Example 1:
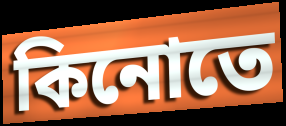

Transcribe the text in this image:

কিনোতে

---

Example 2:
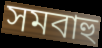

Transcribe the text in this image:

সমবাহু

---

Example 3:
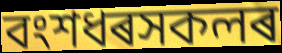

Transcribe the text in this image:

বংশধৰসকলৰ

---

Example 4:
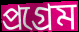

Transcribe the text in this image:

প্ৰগ্ৰেম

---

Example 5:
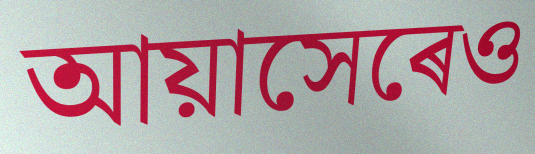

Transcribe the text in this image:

আয়াসেৰেও